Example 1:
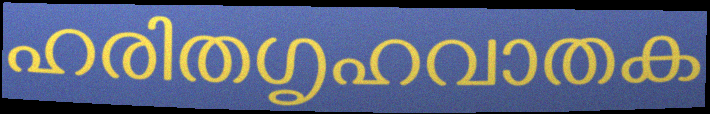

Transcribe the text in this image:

ഹരിതഗൃഹവാതക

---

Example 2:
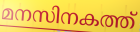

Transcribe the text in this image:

മനസിനകത്ത്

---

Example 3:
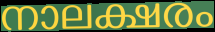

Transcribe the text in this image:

നാലക്ഷരം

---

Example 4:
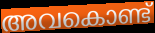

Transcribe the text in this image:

അവകൊണ്ട്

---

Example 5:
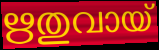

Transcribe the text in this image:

ഋതുവായ്